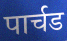
पार्चड